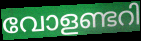
വോളണ്ടറി